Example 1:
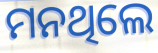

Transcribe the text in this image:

ମନଥିଲେ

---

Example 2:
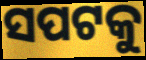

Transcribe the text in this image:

ସପଟକୁ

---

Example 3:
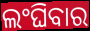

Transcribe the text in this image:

ଲଂଘିବାର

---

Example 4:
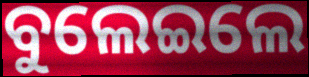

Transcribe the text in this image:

ବୁଲେଇଲେ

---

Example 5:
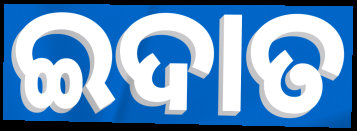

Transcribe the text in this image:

ଇଦାତ